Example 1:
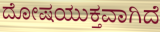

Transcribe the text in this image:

ದೋಷಯುಕ್ತವಾಗಿದೆ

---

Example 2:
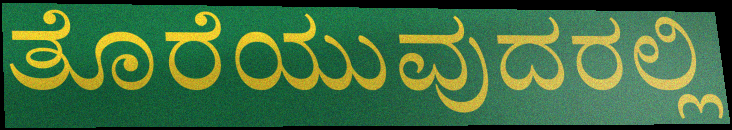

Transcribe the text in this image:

ತೊರೆಯುವುದರಲ್ಲಿ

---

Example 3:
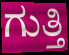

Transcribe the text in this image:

ಗುತ್ತಿ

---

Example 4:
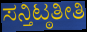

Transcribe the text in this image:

ಸನ್ತಿಟ್ಠತೀತಿ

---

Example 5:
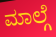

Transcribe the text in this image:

ಮಾಲ್ಗೆ